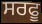
ਸਰਫੂ